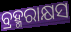
ବ୍ରହ୍ମରାକ୍ଷସ